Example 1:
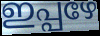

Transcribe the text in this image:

ഇപ്പഴേ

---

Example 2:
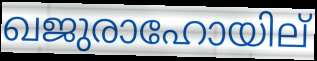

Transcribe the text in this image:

ഖജുരാഹോയില്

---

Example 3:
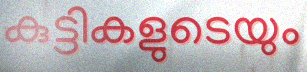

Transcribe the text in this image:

കുട്ടികളുടെയും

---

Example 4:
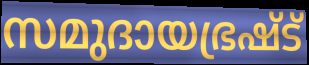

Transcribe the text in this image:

സമുദായഭ്രഷ്ട്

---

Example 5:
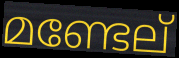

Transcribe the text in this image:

മണ്ടേല്